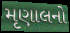
મૃણાલનો